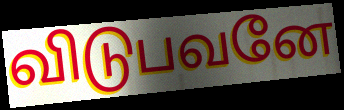
விடுபவனே